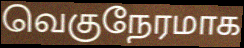
வெகுநேரமாக